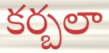
కర్బలా